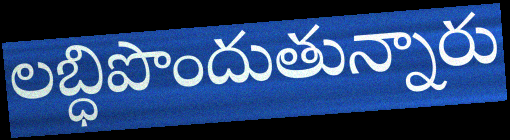
లబ్ధిపొందుతున్నారు